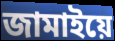
জামাইয়ে